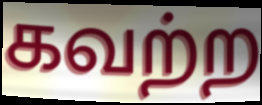
கவற்ற